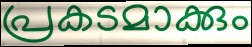
പ്രകടമാക്കും